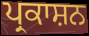
ਪ੍ਰਕਾਸ਼ਨ